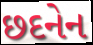
છદનેન